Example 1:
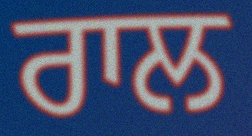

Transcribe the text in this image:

ਰਾਲ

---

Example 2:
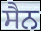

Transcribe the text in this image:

ਸੈਨ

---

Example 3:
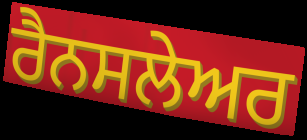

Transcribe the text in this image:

ਰੈਨਸਲੇਅਰ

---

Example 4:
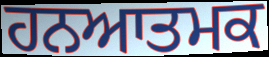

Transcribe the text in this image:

ਹਨਆਤਮਕ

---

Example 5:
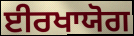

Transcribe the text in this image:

ਈਰਖਾਯੋਗ